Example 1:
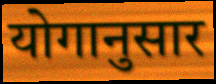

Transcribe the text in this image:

योगानुसार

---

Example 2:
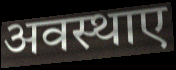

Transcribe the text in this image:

अवस्थाए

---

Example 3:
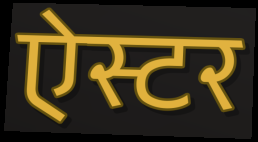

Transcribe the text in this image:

ऐस्टर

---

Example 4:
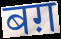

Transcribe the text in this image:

बग़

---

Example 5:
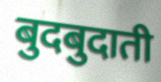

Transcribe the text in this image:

बुदबुदाती